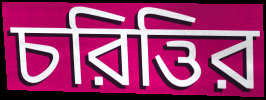
চরিত্তির